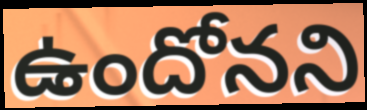
ఉందోనని